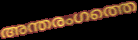
അന്തരംഗത്തെ